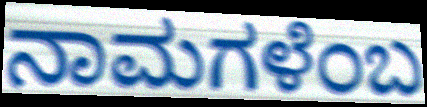
ನಾಮಗಳೆಂಬ